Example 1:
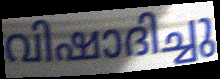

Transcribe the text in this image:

വിഷാദിച്ചു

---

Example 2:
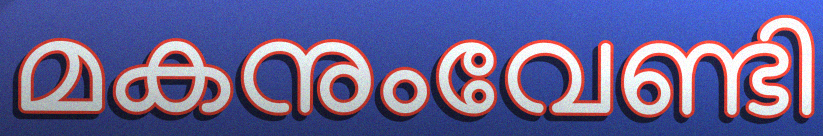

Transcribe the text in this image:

മകനുംവേണ്ടി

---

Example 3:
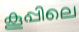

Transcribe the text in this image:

കൂപ്പിലെ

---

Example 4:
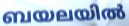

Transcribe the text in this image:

ബയലയിൽ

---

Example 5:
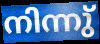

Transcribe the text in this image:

നിന്നു്